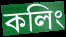
কলিং